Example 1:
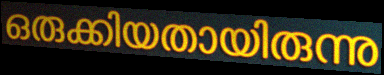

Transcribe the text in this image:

ഒരുക്കിയതായിരുന്നു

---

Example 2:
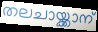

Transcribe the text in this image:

തലചായ്ക്കാന്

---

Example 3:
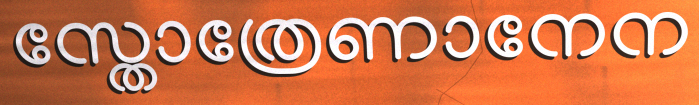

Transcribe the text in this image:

സ്തോത്രേണാനേന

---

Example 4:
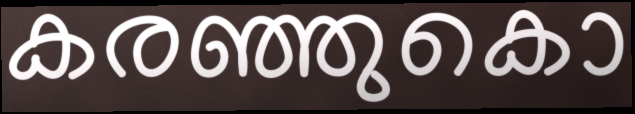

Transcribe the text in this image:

കരഞ്ഞുകൊ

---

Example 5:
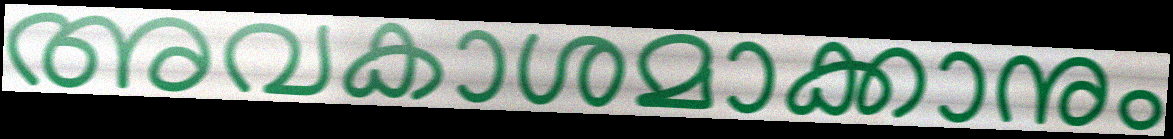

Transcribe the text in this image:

അവകാശമാക്കാനും